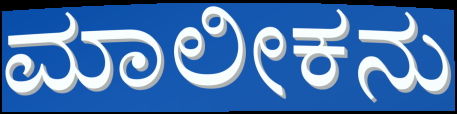
ಮಾಲೀಕನು